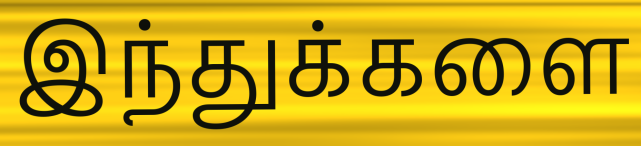
இந்துக்களை